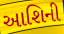
આશિની